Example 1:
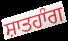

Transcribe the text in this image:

ਸ਼ਾਤਹਾੰਗ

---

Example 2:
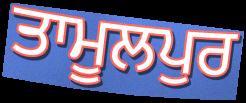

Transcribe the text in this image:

ਤਾਮੂਲਪੁਰ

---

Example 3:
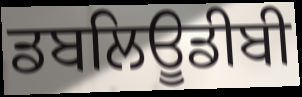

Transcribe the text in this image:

ਡਬਲਿਊਡੀਬੀ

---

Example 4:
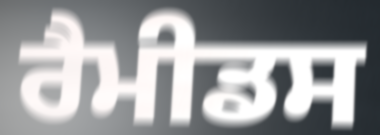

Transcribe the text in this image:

ਰੈਮੀਡਸ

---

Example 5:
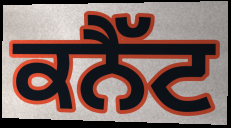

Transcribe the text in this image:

ਕਨੈੱਟ